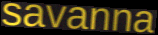
savanna